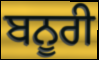
ਬਨੂਰੀ